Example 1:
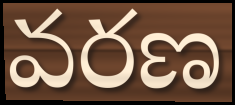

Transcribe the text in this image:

వరణ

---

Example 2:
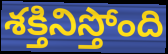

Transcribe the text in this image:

శక్తినిస్తోంది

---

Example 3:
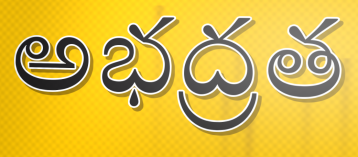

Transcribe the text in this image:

అభద్రత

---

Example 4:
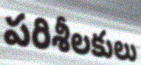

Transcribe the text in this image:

పరిశీలకులు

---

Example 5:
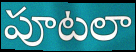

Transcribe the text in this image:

పూటలా